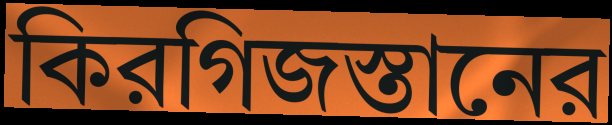
কিরগিজস্তানের